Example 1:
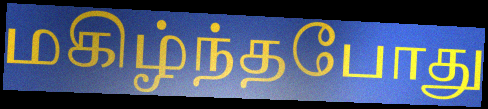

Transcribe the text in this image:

மகிழ்ந்தபோது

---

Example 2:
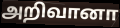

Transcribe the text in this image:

அறிவானா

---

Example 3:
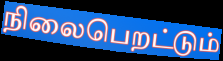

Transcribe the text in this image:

நிலைபெறட்டும்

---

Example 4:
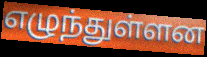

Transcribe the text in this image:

எழுந்துள்ளன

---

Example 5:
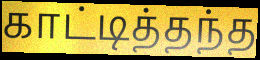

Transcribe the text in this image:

காட்டித்தந்த